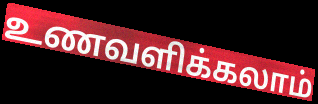
உணவளிக்கலாம்